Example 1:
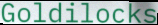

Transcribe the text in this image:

Goldilocks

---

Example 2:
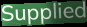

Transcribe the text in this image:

Supplied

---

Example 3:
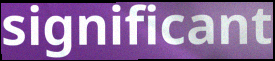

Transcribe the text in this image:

significant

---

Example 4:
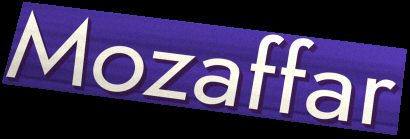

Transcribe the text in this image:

Mozaffar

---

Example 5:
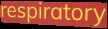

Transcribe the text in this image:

respiratory